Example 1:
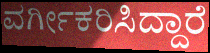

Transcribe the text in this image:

ವರ್ಗೀಕರಿಸಿದ್ದಾರೆ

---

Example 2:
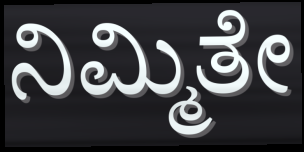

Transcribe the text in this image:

ನಿಮ್ಮಿತೇ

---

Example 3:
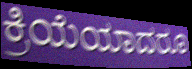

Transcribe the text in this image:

ಕ್ರಿಯೆಯಾದರೂ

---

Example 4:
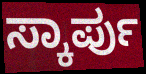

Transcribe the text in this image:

ಸ್ಕಾರ್ಪು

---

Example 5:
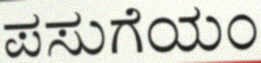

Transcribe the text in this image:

ಪಸುಗೆಯಂ